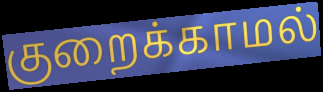
குறைக்காமல்